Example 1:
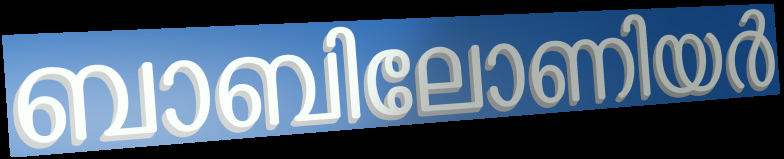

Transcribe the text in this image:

ബാബിലോണിയർ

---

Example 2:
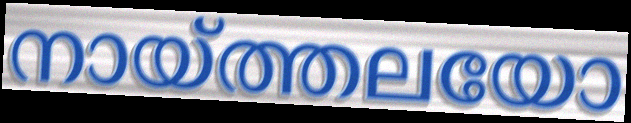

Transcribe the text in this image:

നായ്ത്തലയോ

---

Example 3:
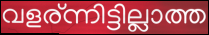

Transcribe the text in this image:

വളര്ന്നിട്ടില്ലാത്ത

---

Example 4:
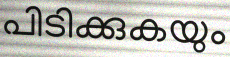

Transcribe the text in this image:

പിടിക്കുകയും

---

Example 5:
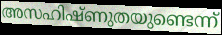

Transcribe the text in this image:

അസഹിഷ്ണുതയുണ്ടെന്ന്